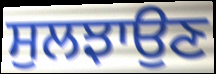
ਸੁਲਝਾਉਣ